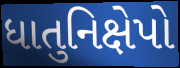
ધાતુનિક્ષેપો